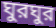
ঘুরঘুর